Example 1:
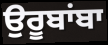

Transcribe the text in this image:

ਉਰੂਬਾਂਬਾ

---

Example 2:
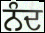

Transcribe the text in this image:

ਨੰਦ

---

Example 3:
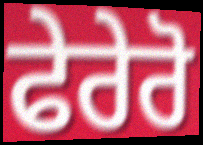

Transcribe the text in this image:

ਫੇਰੇਰੋ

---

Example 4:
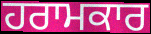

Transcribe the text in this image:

ਹਰਾਮਕਾਰ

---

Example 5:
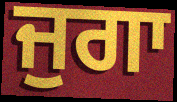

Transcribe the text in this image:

ਜੁਗਾ